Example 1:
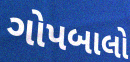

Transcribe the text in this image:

ગોપબાલો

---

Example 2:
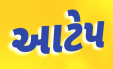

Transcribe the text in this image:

આટેપ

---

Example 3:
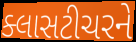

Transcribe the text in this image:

ક્લાસટીચરને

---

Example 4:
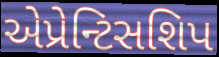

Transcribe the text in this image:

એપ્રેન્ટિસશિપ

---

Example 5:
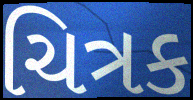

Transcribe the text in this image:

ચિત્રક